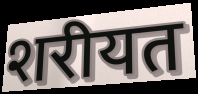
शरीयत